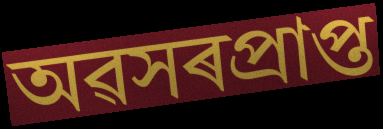
অৱসৰপ্ৰাপ্ত